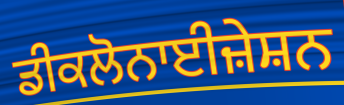
ਡੀਕਲੋਨਾਈਜ਼ੇਸ਼ਨ